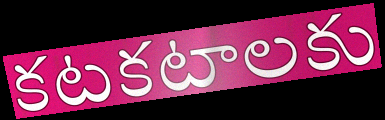
కటకటాలకు